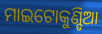
ମାଇଟୋକୁଣ୍ଡିଆ